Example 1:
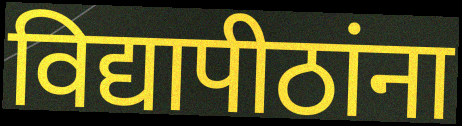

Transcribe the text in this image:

विद्यापीठांना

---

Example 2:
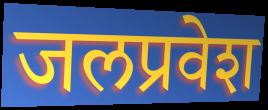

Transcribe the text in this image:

जलप्रवेश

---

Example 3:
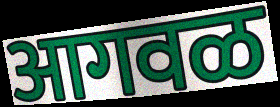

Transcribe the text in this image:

आगवळ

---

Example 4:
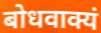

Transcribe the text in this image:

बोधवाक्यं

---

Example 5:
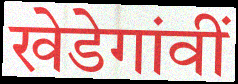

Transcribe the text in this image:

खेडेगांवीं